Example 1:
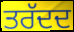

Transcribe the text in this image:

ਤਰੱਦਦ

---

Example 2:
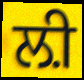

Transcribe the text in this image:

ਲ਼ੀ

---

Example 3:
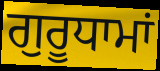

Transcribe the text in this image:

ਗੁਰੂਧਾਮਾਂ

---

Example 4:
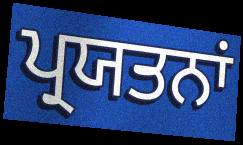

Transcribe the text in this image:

ਪ੍ਰਯਤਨਾਂ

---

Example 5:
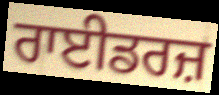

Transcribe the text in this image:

ਰਾਈਡਰਜ਼